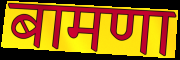
बामणा